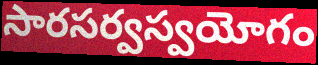
సారసర్వస్వయోగం